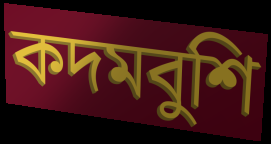
কদমবুশি